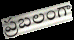
ప్రబలంగా